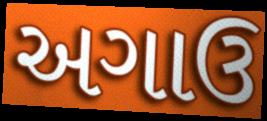
અગાઉ